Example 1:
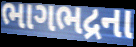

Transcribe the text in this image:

ભાગભદ્રના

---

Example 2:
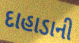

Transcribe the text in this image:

દાહાડાની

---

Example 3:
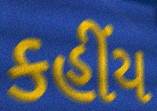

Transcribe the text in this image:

કહીંય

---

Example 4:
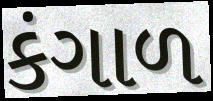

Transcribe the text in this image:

કંગાળ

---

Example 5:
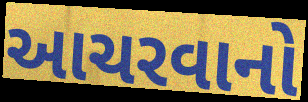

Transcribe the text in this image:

આચરવાનો